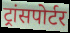
ट्रांसपोर्टर